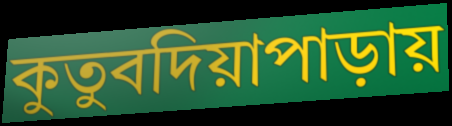
কুতুবদিয়াপাড়ায়